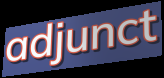
adjunct